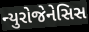
ન્યુરોજેનેસિસ